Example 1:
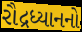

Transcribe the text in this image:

રૌદ્રધ્યાનનો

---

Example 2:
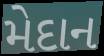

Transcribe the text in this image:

મેદાન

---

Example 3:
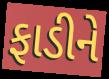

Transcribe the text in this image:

ફાડીને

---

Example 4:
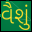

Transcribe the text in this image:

વૈશું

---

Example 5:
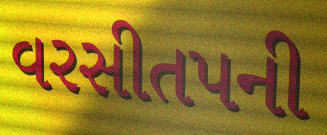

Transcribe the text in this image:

વરસીતપની